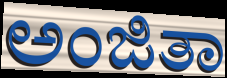
ಅಂಜಿತಾ